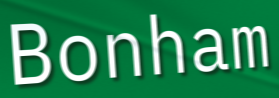
Bonham